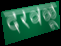
दरवळू